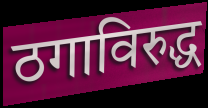
ठगाविरुद्ध